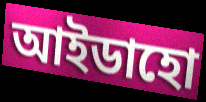
আইডাহো